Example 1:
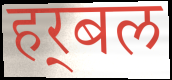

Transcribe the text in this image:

हर्बल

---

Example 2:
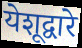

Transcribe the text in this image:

येशूद्वारे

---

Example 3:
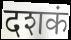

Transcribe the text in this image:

दशकं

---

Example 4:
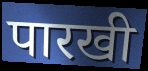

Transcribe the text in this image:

पारखी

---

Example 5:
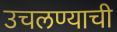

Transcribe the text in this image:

उचलण्याची